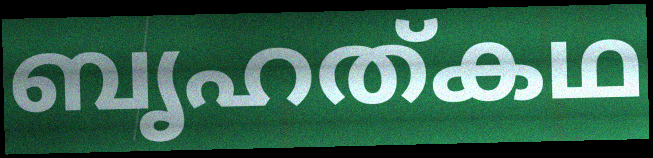
ബൃഹത്കഥ